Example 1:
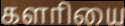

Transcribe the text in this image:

களரியை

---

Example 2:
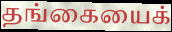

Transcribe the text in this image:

தங்கையைக்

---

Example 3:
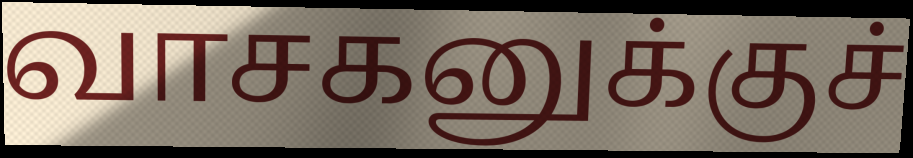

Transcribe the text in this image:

வாசகனுக்குச்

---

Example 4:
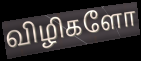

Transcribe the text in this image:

விழிகளோ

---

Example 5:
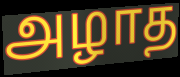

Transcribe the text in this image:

அழாத